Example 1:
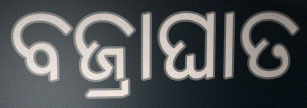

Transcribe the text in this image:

ବଜ୍ରାଘାତ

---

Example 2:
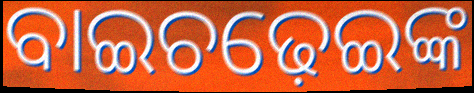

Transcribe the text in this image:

ବାଇଚଢ଼େଇଙ୍କ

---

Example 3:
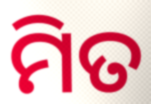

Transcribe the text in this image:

ମିତ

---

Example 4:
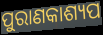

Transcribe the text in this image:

ପୁରାଣକାଶ୍ୟପ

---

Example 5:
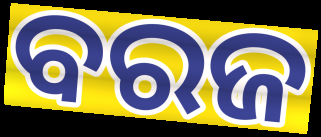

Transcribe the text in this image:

ବରଜ